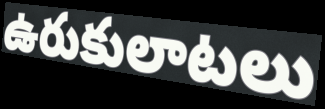
ఉరుకులాటలు